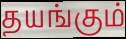
தயங்கும்